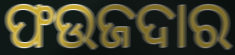
ଫଉଜଦାର